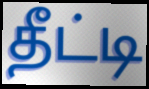
தீட்டி